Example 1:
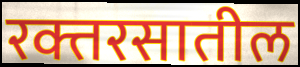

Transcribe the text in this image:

रक्तरसातील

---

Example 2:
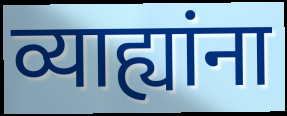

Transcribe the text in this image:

व्याह्यांना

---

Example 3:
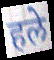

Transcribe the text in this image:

हले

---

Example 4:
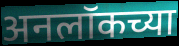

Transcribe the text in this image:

अनलॉकच्या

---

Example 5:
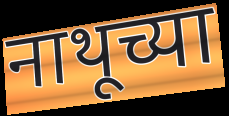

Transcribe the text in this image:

नाथूच्या